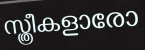
സ്ത്രീകളാരോ